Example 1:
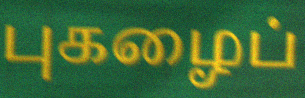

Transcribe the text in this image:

புகழைப்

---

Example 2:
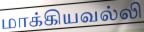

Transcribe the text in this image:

மாக்கியவல்லி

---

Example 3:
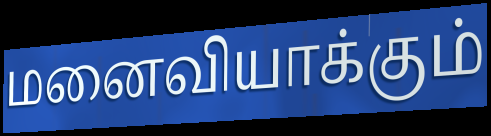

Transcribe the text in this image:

மனைவியாக்கும்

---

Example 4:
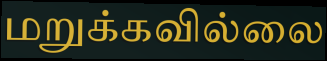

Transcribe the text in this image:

மறுக்கவில்லை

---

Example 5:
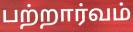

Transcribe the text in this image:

பற்றார்வம்